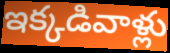
ఇక్కడివాళ్లు